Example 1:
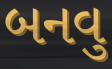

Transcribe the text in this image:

બનવુ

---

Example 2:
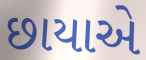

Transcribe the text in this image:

છાયાએ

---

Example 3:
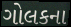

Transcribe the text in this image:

ગોલકના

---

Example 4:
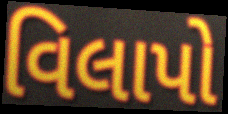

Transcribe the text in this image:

વિલાપો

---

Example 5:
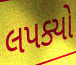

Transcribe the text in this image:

લપક્યો